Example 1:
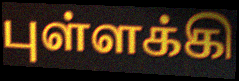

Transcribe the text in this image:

புள்ளக்கி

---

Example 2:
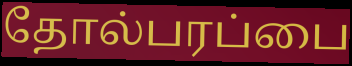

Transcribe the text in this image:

தோல்பரப்பை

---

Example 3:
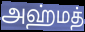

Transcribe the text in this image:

அஹ்மத்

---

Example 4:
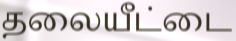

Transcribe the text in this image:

தலையீட்டை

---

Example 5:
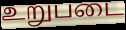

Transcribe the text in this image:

உறுபடை